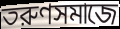
তরুণসমাজে